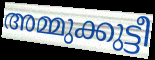
അമ്മുക്കുട്ടീ